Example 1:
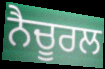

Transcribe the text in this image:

ਨੈਚੂਰਲ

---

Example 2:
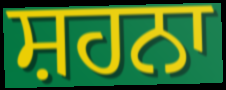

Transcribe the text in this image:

ਸ਼ਹਨਾ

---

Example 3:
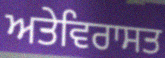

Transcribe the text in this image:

ਅਤੇਵਿਰਾਸਤ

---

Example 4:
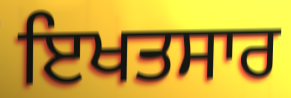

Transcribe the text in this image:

ਇਖਤਸਾਰ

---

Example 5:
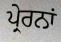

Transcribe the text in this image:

ਪ੍ਰੇਰਨਾਂ